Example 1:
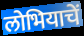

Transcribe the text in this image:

लोभियाचें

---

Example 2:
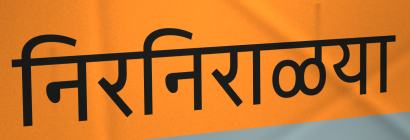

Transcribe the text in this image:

निरनिराळया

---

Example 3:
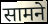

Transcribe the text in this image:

सामने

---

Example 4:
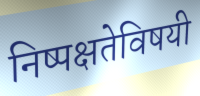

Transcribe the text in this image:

निष्पक्षतेविषयी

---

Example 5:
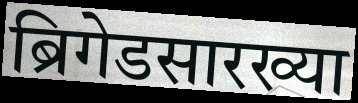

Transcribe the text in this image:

ब्रिगेडसारख्या